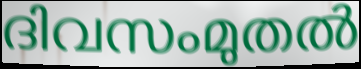
ദിവസംമുതൽ